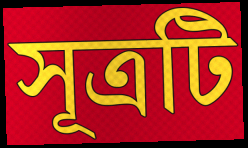
সূত্রটি